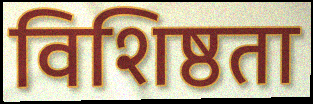
विशिष्ठता